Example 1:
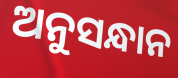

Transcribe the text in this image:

ଅନୁସନ୍ଧାନ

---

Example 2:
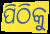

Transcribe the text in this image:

ପିଠିକୁ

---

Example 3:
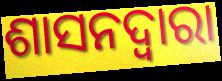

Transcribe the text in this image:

ଶାସନଦ୍ୱାରା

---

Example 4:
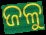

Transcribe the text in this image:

ଜଳୁ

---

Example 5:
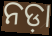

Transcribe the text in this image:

ନଡ଼ା